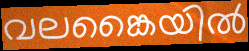
വലങ്കൈയിൽ